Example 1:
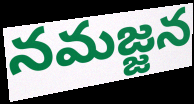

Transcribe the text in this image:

నమజ్జన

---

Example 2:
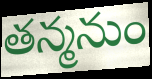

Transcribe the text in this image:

తన్మనుం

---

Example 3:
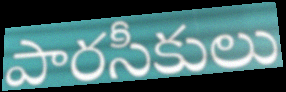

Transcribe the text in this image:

పారసీకులు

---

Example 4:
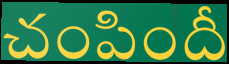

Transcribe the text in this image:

చంపిందీ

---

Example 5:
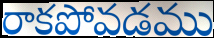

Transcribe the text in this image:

రాకపోవడము